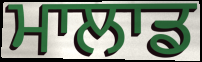
ਮਾਲਾਡ